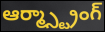
ఆర్మ్స్ట్రాంగ్